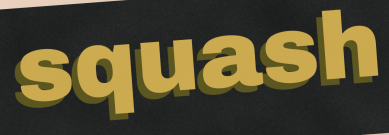
squash